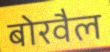
बोरवैल